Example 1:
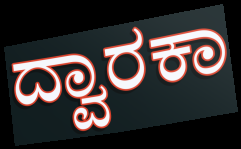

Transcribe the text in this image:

ದ್ವಾರಕಾ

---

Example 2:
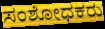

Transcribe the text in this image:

ಸಂಶೋಧಕರು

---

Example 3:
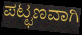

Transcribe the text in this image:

ಪಟ್ಟಣವಾಗಿ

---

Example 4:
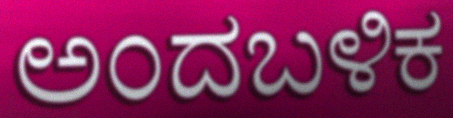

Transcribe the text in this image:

ಅಂದಬಳಿಕ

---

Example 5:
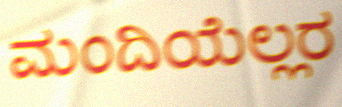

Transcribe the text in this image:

ಮಂದಿಯೆಲ್ಲರ